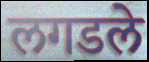
लगडले